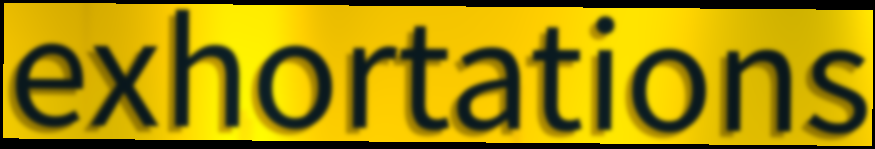
exhortations